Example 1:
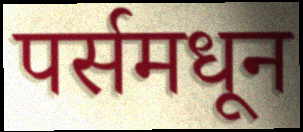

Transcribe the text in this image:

पर्समधून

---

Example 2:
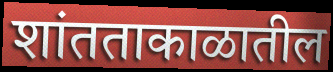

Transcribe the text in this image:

शांतताकाळातील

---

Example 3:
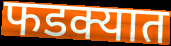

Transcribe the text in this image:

फडक्यात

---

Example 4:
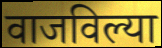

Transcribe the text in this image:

वाजविल्या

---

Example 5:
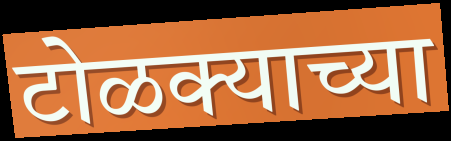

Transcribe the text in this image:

टोळक्याच्या